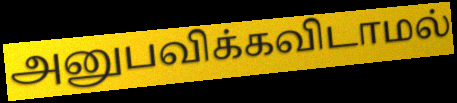
அனுபவிக்கவிடாமல்